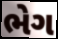
ભેગ